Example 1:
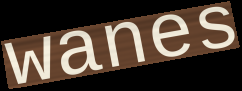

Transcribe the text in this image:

wanes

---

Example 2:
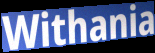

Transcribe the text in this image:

Withania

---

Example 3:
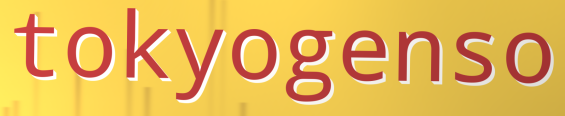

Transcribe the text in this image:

tokyogenso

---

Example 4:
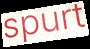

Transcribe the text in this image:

spurt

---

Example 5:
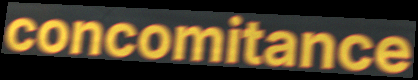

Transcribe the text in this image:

concomitance